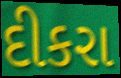
દીકરા